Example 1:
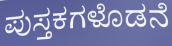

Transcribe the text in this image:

ಪುಸ್ತಕಗಳೊಡನೆ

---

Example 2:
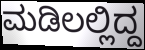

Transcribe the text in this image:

ಮಡಿಲಲ್ಲಿದ್ದ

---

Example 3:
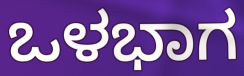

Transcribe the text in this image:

ಒಳಭಾಗ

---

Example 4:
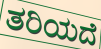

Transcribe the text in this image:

ತರಿಯದೆ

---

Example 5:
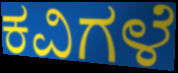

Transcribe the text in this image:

ಕವಿಗಳೆ